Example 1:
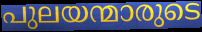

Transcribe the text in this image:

പുലയന്മാരുടെ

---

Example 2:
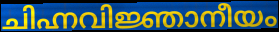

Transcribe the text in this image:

ചിഹ്നവിജ്ഞാനീയം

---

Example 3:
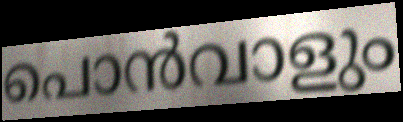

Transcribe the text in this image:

പൊൻവാളും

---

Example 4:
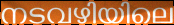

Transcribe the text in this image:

നടവഴിയിലെ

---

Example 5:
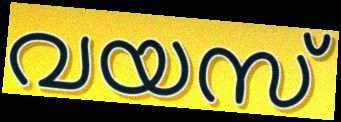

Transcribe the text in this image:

വയസ്